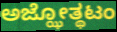
ಅಜ್ಝೋತ್ಥಟಂ